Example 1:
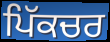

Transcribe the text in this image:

ਪਿੱਕਚਰ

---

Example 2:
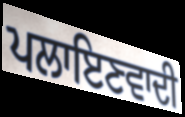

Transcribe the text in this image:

ਪਲਾਇਣਵਾਦੀ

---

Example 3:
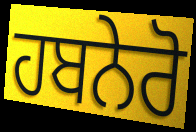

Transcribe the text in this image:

ਹਬਨੇਰੋ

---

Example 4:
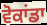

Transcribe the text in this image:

ਵੋਕਾਂਡਾ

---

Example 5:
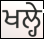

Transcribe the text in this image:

ਖਲ੍ਹੇ